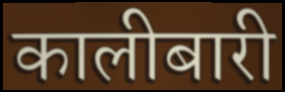
कालीबारी